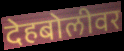
देहबोलीवर